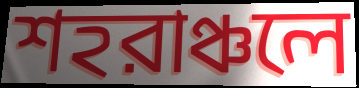
শহরাঞ্চলে